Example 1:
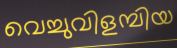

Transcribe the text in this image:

വെച്ചുവിളമ്പിയ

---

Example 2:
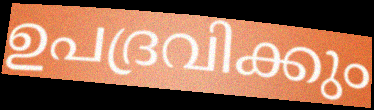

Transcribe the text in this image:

ഉപദ്രവിക്കും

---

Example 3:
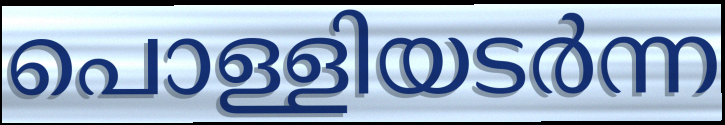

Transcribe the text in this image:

പൊള്ളിയടർന്ന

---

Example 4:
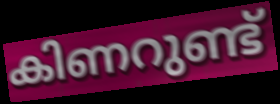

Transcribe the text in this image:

കിണറുണ്ട്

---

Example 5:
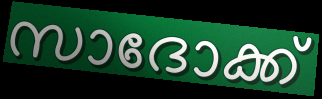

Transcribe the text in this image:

സാദോക്ക്